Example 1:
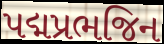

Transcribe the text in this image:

પદ્મપ્રભજિન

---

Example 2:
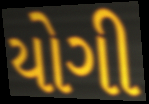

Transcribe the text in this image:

યોગી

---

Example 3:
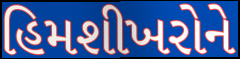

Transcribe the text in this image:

હિમશીખરોને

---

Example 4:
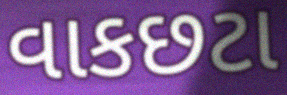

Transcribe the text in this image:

વાકછટા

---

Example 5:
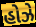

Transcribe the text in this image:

હોઝે